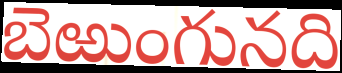
బెఱుంగునది